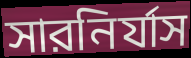
সারনির্যাস